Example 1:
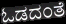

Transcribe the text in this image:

ಓಡದಂತೆ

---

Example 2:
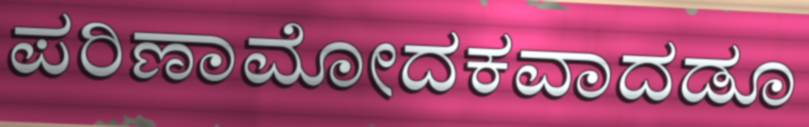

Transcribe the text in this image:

ಪರಿಣಾಮೋದಕವಾದಡೂ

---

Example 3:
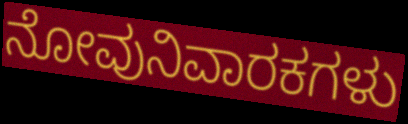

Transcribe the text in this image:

ನೋವುನಿವಾರಕಗಳು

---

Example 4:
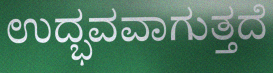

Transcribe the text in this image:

ಉದ್ಭವವಾಗುತ್ತದೆ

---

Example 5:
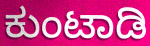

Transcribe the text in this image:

ಕುಂಟಾಡಿ